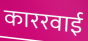
काररवाई